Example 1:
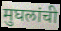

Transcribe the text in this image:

मुघलांची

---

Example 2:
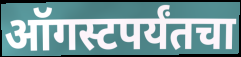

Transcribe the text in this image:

ऑगस्टपर्यंतचा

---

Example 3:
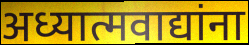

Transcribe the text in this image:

अध्यात्मवाद्यांना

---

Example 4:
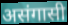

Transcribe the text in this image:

असंगासी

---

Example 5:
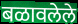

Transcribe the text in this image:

बळावलेले